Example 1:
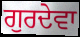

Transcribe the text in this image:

ਗੁਰਦੇਵਾ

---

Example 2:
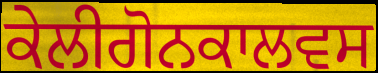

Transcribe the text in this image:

ਕੇਲੀਗੋਨਕਾਲਵਸ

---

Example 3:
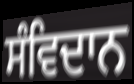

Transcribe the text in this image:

ਸੰਵਿਦਾਨ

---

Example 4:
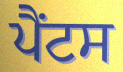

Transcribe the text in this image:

ਪੈਂਟਸ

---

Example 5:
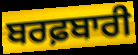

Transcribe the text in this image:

ਬਰਫ਼ਬਾਰੀ